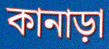
কানাড়া